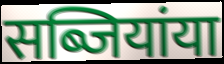
सब्जियांया